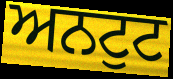
ਅਨਟੁਟ